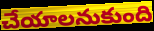
చేయాలనుకుంది